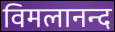
विमलानन्द